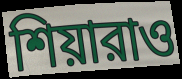
শিয়ারাও